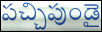
పచ్చిపుండై